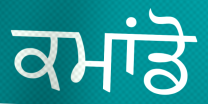
ਕਮਾਂਡੋ